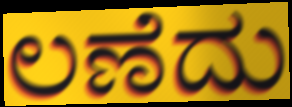
ಲಣೆದು